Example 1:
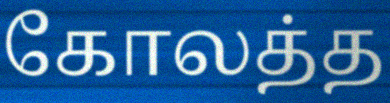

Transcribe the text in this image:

கோலத்த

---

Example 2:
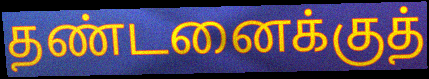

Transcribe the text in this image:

தண்டனைக்குத்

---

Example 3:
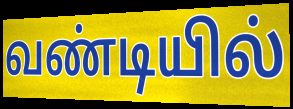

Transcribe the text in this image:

வண்டியில்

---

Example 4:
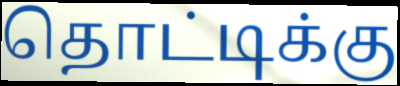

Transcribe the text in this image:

தொட்டிக்கு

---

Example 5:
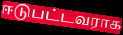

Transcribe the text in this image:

ஈடுபட்டவராக